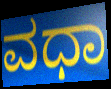
ವಧಾ